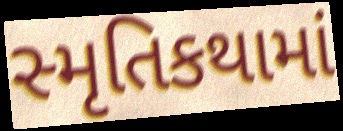
સ્મૃતિકથામાં